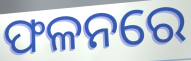
ଫଳନରେ